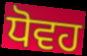
ਧੋਵਹ